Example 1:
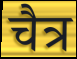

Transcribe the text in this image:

चैत्र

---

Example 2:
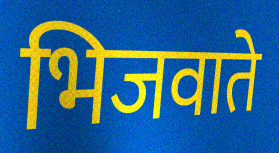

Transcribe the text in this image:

भिजवाते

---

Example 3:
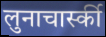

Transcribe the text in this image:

लुनाचार्स्की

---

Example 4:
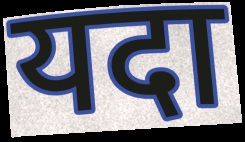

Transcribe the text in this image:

यदा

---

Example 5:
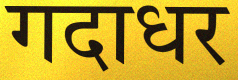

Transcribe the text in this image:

गदाधर